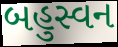
બહુસ્વન